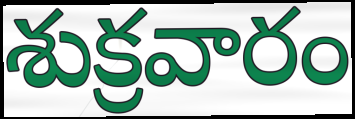
శుక్రవారం